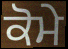
ਕੋਮੇ